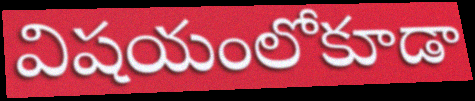
విషయంలోకూడా